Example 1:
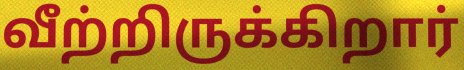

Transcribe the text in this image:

வீற்றிருக்கிறார்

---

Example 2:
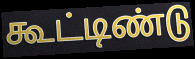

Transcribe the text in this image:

கூட்டிண்டு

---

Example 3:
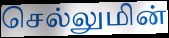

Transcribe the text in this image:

செல்லுமின்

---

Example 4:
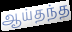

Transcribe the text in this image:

ஆய்தந்த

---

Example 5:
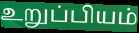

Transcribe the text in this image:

உறுப்பியம்